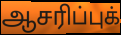
ஆசரிப்புக்